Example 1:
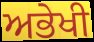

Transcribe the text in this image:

ਅਭੇਖੀ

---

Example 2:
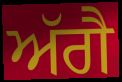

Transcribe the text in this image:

ਅੱਗੈ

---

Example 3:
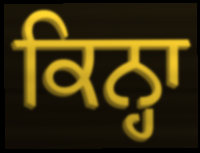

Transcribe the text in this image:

ਕਿਨ੍ਹਾ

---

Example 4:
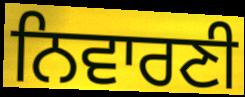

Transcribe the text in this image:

ਨਿਵਾਰਣੀ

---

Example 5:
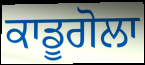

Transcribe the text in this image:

ਕਾਡੂਗੋਲਾ